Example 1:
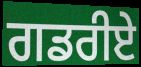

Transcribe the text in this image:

ਗਡਰੀਏ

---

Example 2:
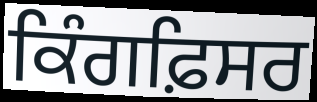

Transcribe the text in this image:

ਕਿੰਗਫ਼ਿਸਰ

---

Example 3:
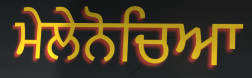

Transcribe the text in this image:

ਮੇਲੇਨੋਚਿਆ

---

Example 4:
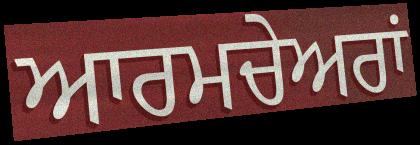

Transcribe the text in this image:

ਆਰਮਚੇਅਰਾਂ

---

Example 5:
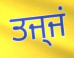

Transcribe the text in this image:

ਤਜ੍ਜਂ